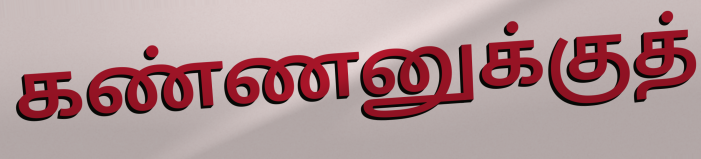
கண்ணனுக்குத்